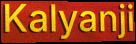
Kalyanji